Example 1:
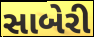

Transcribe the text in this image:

સાબેરી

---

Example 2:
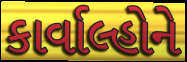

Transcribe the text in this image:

કાર્વાલ્હોને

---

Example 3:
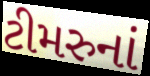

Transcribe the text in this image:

ટીમરુનાં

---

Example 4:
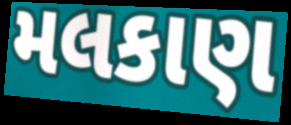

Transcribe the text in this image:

મલકાણ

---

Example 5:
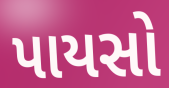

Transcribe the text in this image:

પાયસો